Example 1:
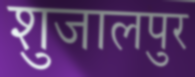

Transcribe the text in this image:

शुजालपुर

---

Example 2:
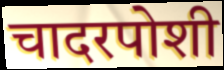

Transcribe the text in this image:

चादरपोशी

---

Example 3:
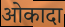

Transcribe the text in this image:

ओकादा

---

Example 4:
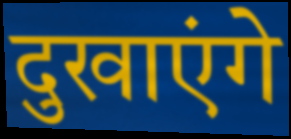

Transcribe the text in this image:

दुखाएंगे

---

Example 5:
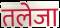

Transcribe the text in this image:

तलेजा